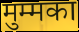
मुम्मका